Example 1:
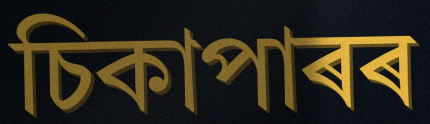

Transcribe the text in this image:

চিকাপাৰৰ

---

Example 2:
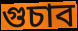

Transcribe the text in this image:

গুচাব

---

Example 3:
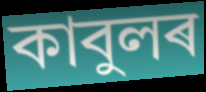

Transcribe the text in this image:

কাবুলৰ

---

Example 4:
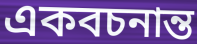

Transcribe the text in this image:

একবচনান্ত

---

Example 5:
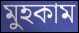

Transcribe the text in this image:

মুহকাম